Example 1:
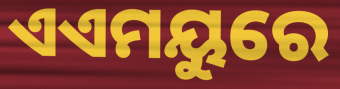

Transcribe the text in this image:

ଏଏମୟୁରେ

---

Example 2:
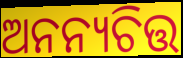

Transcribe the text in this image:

ଅନନ୍ୟଚିତ୍ତ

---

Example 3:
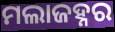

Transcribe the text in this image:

ମଲାଜହ୍ନର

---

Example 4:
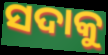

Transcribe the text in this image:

ସଦାକୁ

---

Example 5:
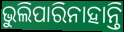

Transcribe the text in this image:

ଭୁଲିପାରିନାହାନ୍ତି